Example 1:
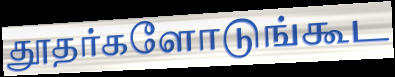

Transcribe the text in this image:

தூதர்களோடுங்கூட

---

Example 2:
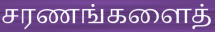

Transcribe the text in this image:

சரணங்களைத்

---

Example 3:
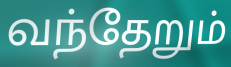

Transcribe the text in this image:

வந்தேறும்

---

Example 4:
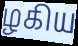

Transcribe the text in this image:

ழகிய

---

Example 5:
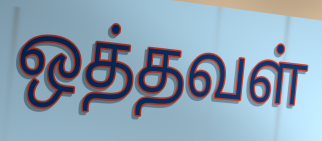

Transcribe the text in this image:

ஒத்தவள்